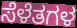
ಸೆಳೆತಗಳ